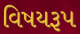
વિષયરૂપ